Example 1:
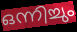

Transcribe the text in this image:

ഒന്നിച്ചും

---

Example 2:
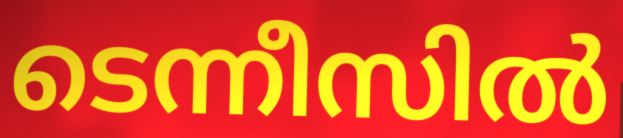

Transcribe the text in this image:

ടെന്നീസിൽ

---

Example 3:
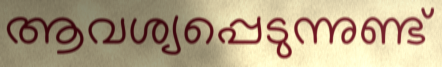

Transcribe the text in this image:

ആവശ്യപ്പെടുന്നുണ്ട്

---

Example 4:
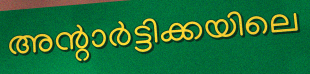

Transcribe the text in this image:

അന്റാർട്ടിക്കയിലെ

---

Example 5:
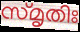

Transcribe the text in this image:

സ്മൃതിഃ